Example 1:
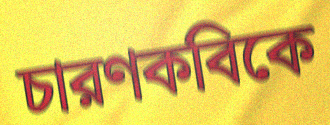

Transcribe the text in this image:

চারণকবিকে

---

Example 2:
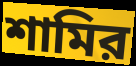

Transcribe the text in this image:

শামির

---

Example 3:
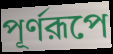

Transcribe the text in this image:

পূর্ণরূপে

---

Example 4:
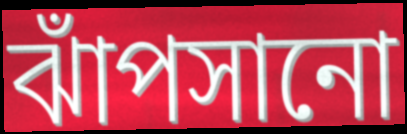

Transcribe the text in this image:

ঝাঁপসানো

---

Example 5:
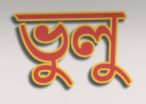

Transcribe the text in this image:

ভুলু